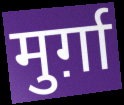
मुर्ग़ा